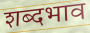
शब्दभाव